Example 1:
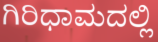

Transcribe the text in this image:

ಗಿರಿಧಾಮದಲ್ಲಿ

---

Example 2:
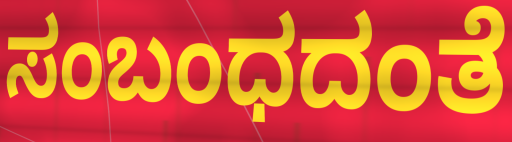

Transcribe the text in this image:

ಸಂಬಂಧದಂತೆ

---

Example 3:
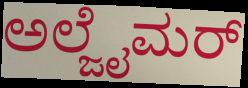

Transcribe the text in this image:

ಅಲ್ಜೈಮರ್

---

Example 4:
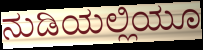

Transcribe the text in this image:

ನುಡಿಯಲ್ಲಿಯೂ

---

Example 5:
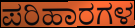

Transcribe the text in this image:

ಪರಿಹಾರಗಳ